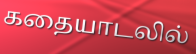
கதையாடலில்